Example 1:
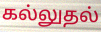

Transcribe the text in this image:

கல்லுதல்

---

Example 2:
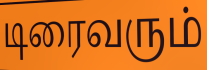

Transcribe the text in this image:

டிரைவரும்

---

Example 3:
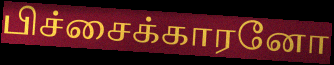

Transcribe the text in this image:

பிச்சைக்காரனோ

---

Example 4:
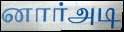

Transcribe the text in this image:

னார்அடி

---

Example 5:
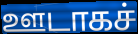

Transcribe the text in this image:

ஊடாகச்